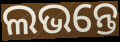
ଲଭନ୍ତେ